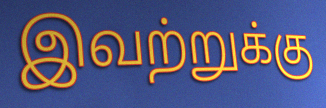
இவற்றுக்கு